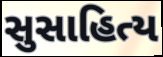
સુસાહિત્ય